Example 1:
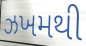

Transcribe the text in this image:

ઝખમથી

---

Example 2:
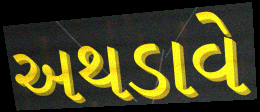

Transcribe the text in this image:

અથડાવે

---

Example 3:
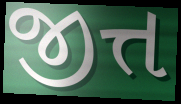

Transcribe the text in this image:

જીત્ત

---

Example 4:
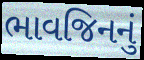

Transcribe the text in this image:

ભાવજિનનું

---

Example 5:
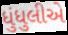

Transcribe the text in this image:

ધુંધુલીએ